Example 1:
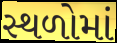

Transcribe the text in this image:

સ્‍થળોમાં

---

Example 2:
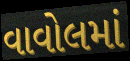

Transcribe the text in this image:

વાવોલમાં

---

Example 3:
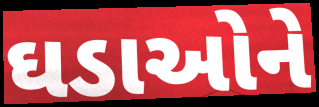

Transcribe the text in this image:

ઘડાઓને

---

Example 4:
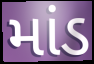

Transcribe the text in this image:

માંડ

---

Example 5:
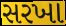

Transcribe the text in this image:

સરખા